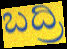
ಬದ್ರಿ